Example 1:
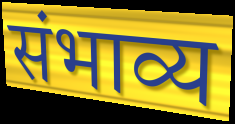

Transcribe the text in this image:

संभाव्य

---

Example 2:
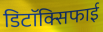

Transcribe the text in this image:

डिटॉक्सिफाई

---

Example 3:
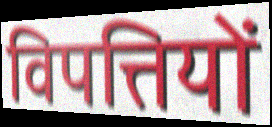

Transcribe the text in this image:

विपत्तियों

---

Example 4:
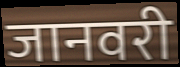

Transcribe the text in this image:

जानवरी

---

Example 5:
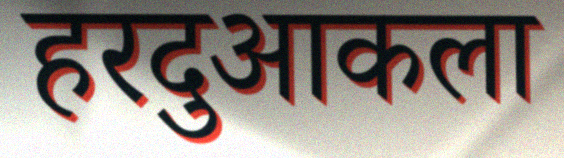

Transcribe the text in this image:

हरदुआकला